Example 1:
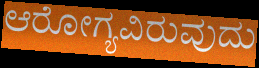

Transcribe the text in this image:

ಆರೋಗ್ಯವಿರುವುದು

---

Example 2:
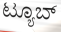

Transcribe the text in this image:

ಟ್ಯೂಬ್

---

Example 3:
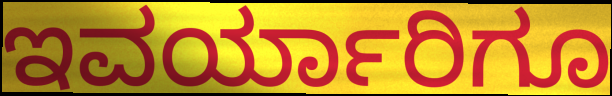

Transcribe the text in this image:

ಇವರ್ಯಾರಿಗೂ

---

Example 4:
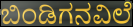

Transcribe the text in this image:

ಬಿಂಡಿಗನವಿಲೆ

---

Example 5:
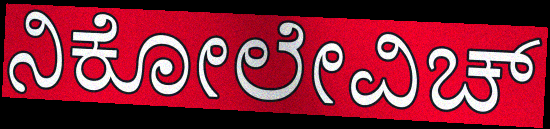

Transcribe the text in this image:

ನಿಕೋಲೇವಿಚ್